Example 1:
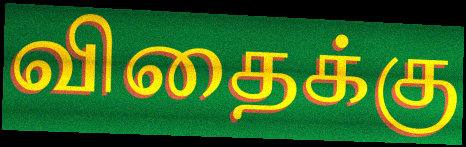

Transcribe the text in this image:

விதைக்கு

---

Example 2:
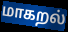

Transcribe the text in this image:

மாகறல்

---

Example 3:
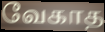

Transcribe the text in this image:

வேகாத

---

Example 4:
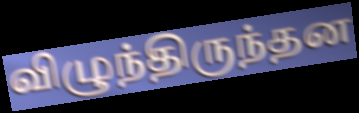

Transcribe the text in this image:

விழுந்திருந்தன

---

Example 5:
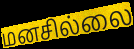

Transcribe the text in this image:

மனசில்லை